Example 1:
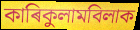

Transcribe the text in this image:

কাৰিকুলামবিলাক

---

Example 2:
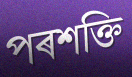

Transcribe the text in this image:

পৰশক্তি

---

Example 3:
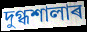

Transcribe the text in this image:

দুগ্ধশালাৰ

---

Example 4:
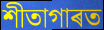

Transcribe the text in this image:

শীতাগাৰত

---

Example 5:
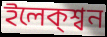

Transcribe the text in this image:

ইলেক্‌শ্বন